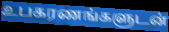
உபகரணங்களுடன்